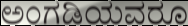
ಅಂಗಡಿಯವರೂ